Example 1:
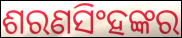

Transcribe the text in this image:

ଶରଣସିଂହଙ୍କର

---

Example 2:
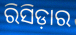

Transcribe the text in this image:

ରିସିଡ଼ାର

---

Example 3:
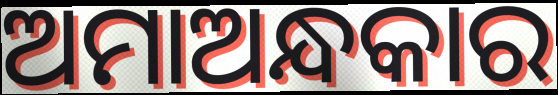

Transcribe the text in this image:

ଅମାଅନ୍ଧକାର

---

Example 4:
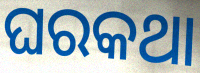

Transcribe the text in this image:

ଘରକଥା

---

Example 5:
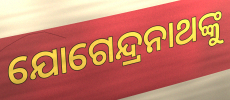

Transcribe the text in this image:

ଯୋଗେନ୍ଦ୍ରନାଥଙ୍କୁ